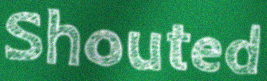
Shouted